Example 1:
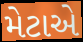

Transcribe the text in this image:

મેટાએ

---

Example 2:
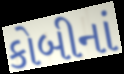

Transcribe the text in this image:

કોબીનાં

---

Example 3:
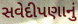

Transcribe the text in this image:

સવેદીપણાનું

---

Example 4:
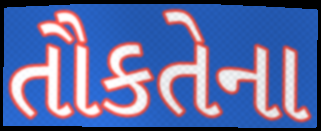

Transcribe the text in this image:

તૌકતેના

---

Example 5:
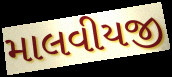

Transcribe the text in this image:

માલવીયજી